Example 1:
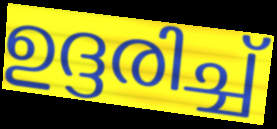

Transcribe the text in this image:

ഉദ്ദരിച്ച്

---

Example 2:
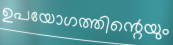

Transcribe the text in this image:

ഉപയോഗത്തിന്റെയും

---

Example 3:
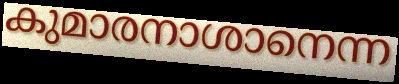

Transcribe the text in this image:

കുമാരനാശാനെന്ന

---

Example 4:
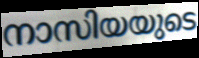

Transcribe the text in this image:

നാസിയയുടെ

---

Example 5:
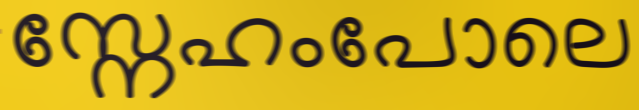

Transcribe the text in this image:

സ്നേഹംപോലെ